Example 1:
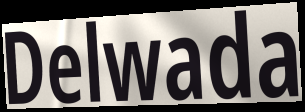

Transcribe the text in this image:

Delwada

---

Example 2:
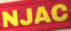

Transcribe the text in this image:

NJAC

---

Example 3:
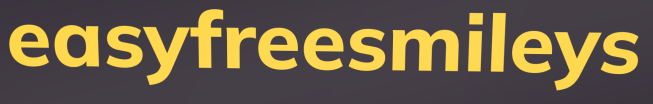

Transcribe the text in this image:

easyfreesmileys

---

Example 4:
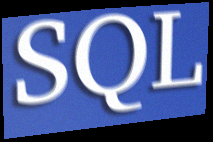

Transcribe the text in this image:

SQL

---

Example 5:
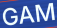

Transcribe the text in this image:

GAM